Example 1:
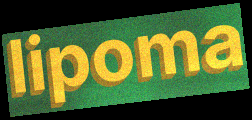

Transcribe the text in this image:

lipoma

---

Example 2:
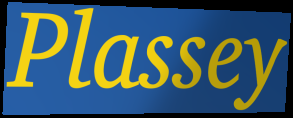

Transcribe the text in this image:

Plassey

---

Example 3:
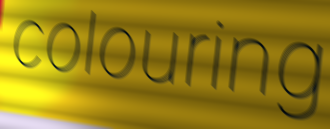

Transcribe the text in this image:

colouring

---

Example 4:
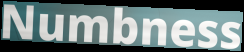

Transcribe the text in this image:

Numbness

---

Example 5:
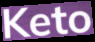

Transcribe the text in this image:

Keto